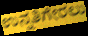
ಉನ್ನತಿಗೇರಲು